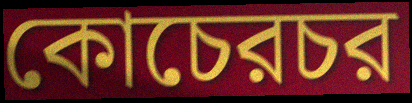
কোচেরচর